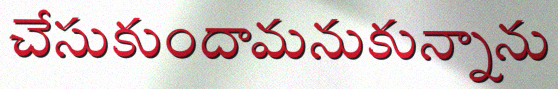
చేసుకుందామనుకున్నాను